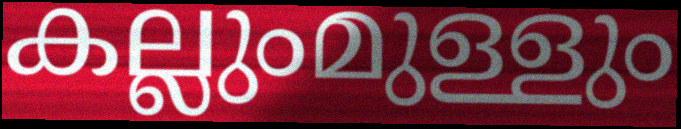
കല്ലുംമുള്ളും